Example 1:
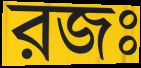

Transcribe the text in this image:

রজঃ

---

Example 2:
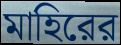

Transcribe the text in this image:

মাহিরের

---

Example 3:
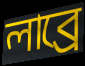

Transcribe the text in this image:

লাব্রে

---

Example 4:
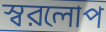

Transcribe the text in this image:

স্বরলোপ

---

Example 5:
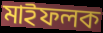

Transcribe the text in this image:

মাইফলক